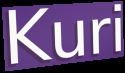
Kuri